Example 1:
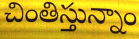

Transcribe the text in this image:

చింతిస్తున్నాం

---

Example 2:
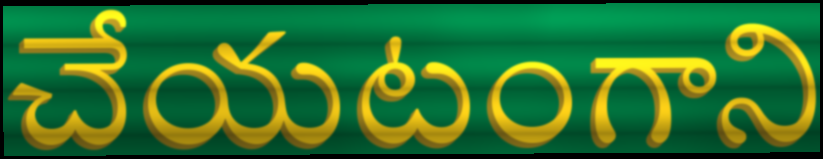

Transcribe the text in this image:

చేయటంగాని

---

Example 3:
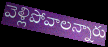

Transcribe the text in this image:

వెళ్లిపోవాలన్నారు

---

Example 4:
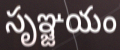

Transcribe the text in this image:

సృఞ్జయం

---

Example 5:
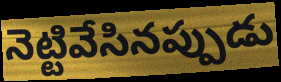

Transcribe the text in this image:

నెట్టివేసినప్పుడు